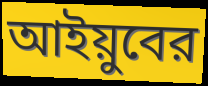
আইয়ুবের